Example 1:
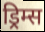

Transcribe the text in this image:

ड्रिम्स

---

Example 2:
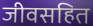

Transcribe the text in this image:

जीवसहित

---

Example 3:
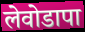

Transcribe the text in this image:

लेवोडापा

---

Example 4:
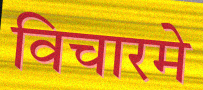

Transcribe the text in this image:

विचारमे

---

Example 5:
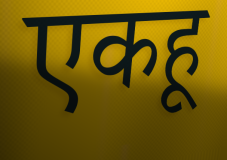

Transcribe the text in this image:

एकहू